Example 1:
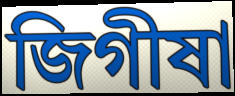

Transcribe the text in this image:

জিগীষা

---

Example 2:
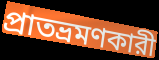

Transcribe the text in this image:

প্রাতভ্রমণকারী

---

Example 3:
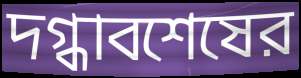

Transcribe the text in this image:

দগ্ধাবশেষের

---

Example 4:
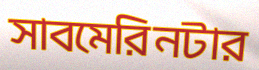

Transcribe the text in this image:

সাবমেরিনটার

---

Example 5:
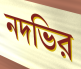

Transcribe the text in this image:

নদভির